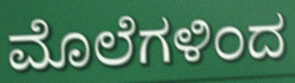
ಮೊಲೆಗಳಿಂದ